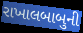
રાખાલબાબુની